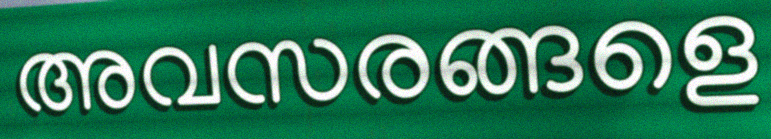
അവസരങ്ങളെ